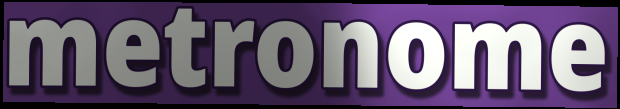
metronome